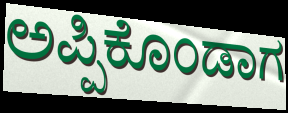
ಅಪ್ಪಿಕೊಂಡಾಗ